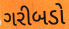
ગરીબડો